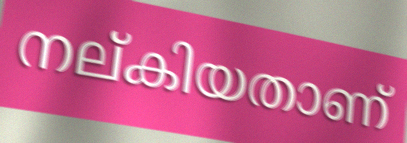
നല്കിയതാണ്